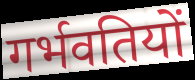
गर्भवतियों